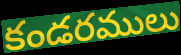
కండరములు